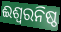
ଈଶ୍ୱରନିଷ୍ଠ